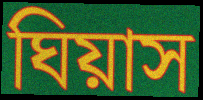
ঘিয়াস